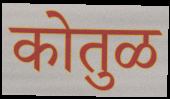
कोतुळ